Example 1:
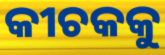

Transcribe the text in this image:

କୀଚକକୁ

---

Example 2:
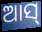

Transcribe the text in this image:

ଆସ୍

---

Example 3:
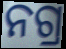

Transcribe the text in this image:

ନଗ୍ର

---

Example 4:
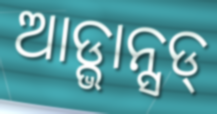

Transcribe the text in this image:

ଆଡ୍ଭାନ୍ସଡ୍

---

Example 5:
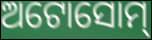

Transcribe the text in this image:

ଅଟୋସୋମ୍